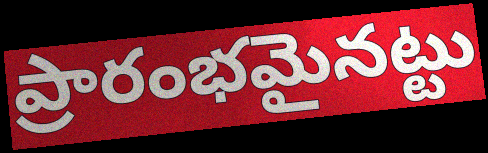
ప్రారంభమైనట్టు